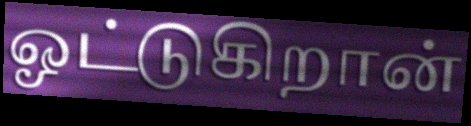
ஓட்டுகிறான்